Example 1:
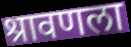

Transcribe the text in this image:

श्रावणला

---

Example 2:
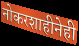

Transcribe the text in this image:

नोकरशाहीनेही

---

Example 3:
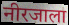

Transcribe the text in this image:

नीरजाला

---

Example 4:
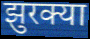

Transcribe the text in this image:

झुरक्या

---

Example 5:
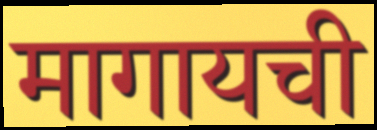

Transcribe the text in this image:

मागायची